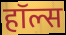
हॉल्स